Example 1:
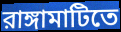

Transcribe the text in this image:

রাঙ্গামাটিতে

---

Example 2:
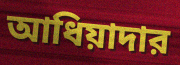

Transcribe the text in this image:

আধিয়াদার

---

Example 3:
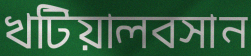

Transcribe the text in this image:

খটিয়ালবসান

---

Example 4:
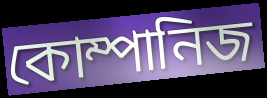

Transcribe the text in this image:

কোম্পানিজ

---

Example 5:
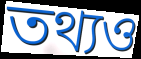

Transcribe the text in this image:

তথ্যও